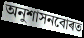
অনুশাসনবোৰত